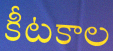
కీటకాల